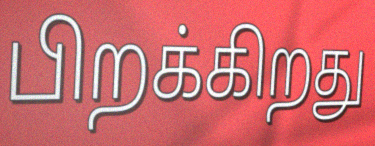
பிறக்கிறது